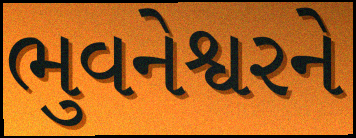
ભુવનેશ્વરને